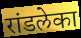
रांडलेका